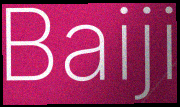
Baiji